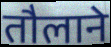
तौलाने